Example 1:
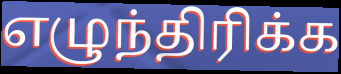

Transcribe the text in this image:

எழுந்திரிக்க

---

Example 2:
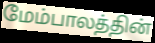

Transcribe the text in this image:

மேம்பாலத்தின்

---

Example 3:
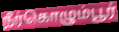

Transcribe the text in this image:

நீர்கொழும்பூர்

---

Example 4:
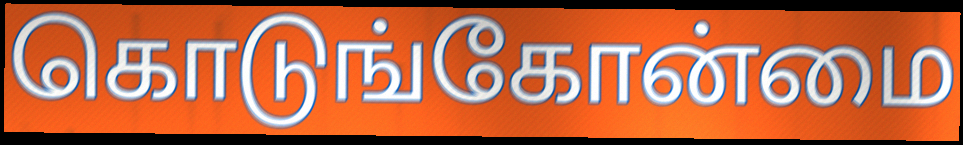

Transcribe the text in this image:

கொடுங்கோன்மை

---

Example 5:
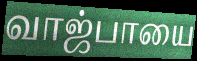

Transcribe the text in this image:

வாஜ்பாயை